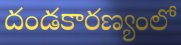
దండకారణ్యంలో